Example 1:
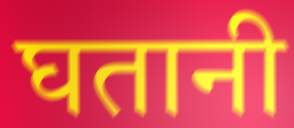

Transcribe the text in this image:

घतानी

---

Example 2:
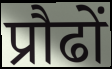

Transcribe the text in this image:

प्रौढों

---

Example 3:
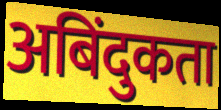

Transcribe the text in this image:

अबिंदुकता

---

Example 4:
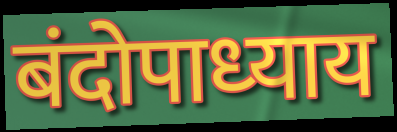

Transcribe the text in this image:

बंदोपाध्‍याय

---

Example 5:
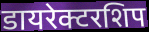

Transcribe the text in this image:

डायरेक्टरशिप